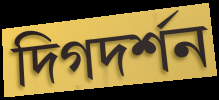
দিগদর্শন